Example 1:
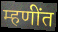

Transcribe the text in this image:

म्हणींत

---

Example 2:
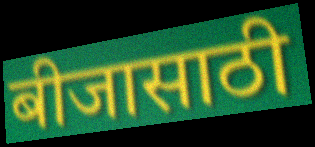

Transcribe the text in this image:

बीजासाठी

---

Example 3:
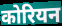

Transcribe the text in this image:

कोरियन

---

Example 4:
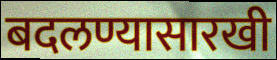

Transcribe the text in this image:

बदलण्यासारखी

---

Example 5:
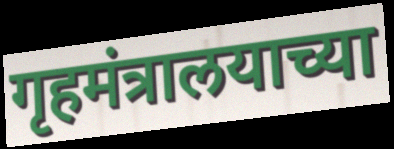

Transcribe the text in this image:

गृहमंत्रालयाच्या